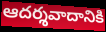
ఆదర్శవాదానికి